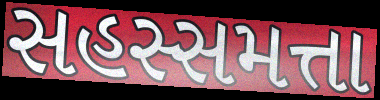
સહસ્સમત્તા